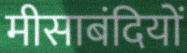
मीसाबंदियों